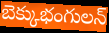
బెక్కుభంగులన్